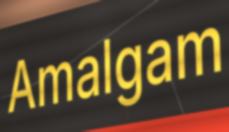
Amalgam